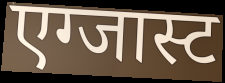
एग्जास्ट